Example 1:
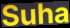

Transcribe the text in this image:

Suha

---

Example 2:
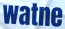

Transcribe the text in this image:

watne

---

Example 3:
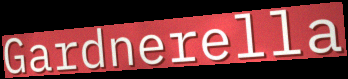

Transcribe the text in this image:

Gardnerella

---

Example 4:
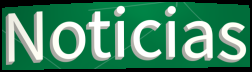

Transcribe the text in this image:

Noticias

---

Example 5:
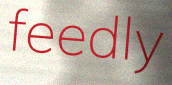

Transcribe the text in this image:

feedly